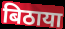
बिठाया